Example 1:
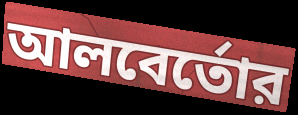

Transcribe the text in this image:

আলবের্তোর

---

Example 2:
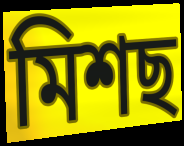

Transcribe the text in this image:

মিশছ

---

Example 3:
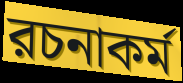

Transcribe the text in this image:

রচনাকর্ম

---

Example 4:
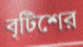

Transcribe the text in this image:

বৃটিশের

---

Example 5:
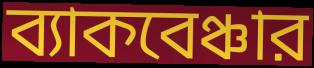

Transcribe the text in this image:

ব্যাকবেঞ্চার